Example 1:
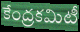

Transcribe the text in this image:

కేంద్రకమిటీ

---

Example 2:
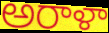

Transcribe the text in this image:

అరాళా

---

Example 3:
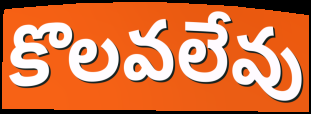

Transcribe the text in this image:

కొలవలేవు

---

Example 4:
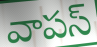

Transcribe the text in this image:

వాపస్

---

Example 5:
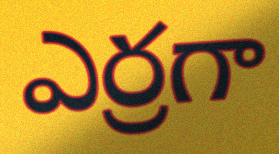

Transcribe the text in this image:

ఎర్రగా